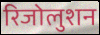
रिजोलुशन